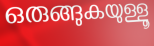
ഒരുങ്ങുകയുള്ളൂ